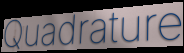
Quadrature